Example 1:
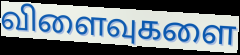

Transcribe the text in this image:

விளைவுகளை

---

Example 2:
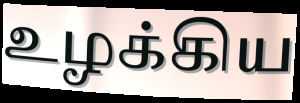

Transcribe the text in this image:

உழக்கிய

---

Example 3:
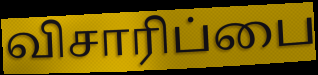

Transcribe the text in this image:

விசாரிப்பை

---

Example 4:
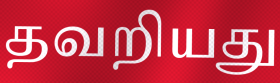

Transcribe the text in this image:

தவறியது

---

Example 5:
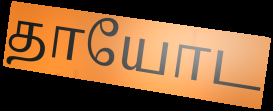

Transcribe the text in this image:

தாயோட